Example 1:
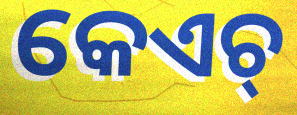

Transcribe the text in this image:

କେଏଚ୍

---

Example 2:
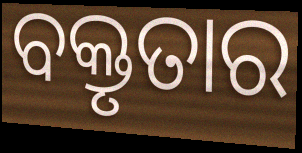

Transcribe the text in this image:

ବକ୍ତୃତାର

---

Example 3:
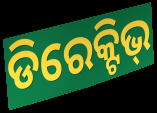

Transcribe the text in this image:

ଡିରେକ୍ଟିଭ୍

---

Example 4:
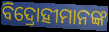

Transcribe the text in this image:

ବିଦ୍ରୋହୀମାନଙ୍କ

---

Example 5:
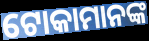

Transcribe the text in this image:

ଟୋକାମାନଙ୍କ